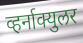
व्हर्नाक्युलर